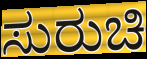
ಸುರುಚಿ